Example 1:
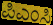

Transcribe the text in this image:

ಪಿಎಂಸಿ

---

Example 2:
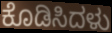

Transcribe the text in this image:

ಕೊಡಿಸಿದಳು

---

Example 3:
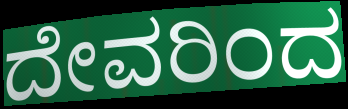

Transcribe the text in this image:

ದೇವರಿಂದ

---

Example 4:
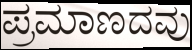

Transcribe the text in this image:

ಪ್ರಮಾಣದವು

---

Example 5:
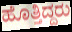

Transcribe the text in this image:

ಹೊತ್ತಿದ್ದರು